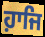
ਹ਼ਾਜਿ